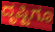
ದೃಷ್ಟಿಗೂ